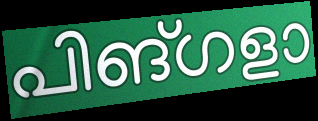
പിങ്ഗളാ